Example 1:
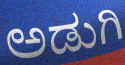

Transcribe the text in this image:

ಅಡುಗಿ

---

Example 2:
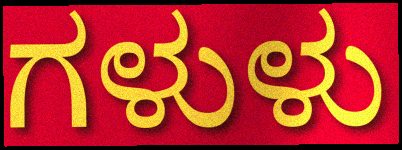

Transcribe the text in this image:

ಗಳುಳು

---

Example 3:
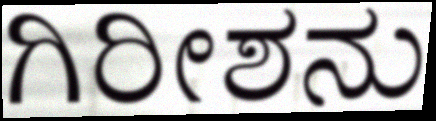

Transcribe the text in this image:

ಗಿರೀಶನು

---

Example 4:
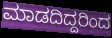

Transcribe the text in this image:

ಮಾಡದಿದ್ದರಿಂದ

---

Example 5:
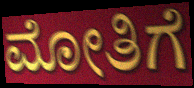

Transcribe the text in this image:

ಮೋತಿಗೆ